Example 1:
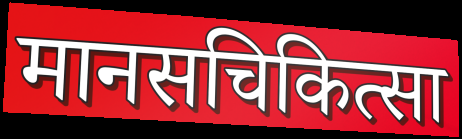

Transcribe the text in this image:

मानसचिकित्सा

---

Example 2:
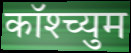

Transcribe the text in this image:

कॉश्च्युम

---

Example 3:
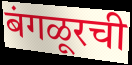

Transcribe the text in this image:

बंगळूरची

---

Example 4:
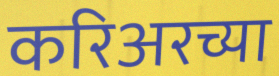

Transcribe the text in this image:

करिअरच्या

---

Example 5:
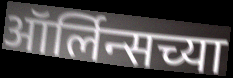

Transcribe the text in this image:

ऑर्लिन्सच्या